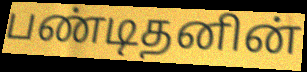
பண்டிதனின்